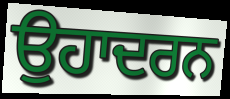
ਉਹਾਦਰਨ